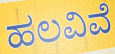
ಹಲವಿವೆ